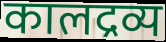
कालद्रव्य